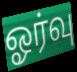
ஓர்வு